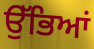
ਉੱਭਿਆਂ